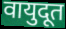
वायुदूत